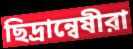
ছিদ্রান্বেষীরা